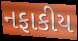
નફાકીય